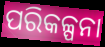
ପରିକଳ୍ପନା